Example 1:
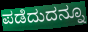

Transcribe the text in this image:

ಪಡೆದುದನ್ನೂ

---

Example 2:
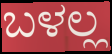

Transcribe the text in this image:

ಬಳಲ್ಲ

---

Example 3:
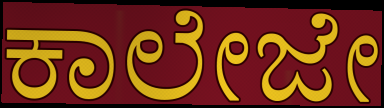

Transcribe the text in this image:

ಕಾಲೇಜೇ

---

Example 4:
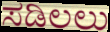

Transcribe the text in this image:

ಸಡಿಲಲು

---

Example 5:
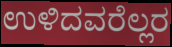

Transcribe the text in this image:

ಉಳಿದವರೆಲ್ಲರ